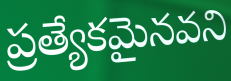
ప్రత్యేకమైనవని